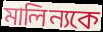
মালিন্যকে